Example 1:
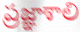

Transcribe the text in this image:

ప్రజ్ఞాశాలి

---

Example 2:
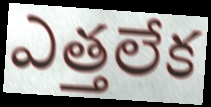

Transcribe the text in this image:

ఎత్తలేక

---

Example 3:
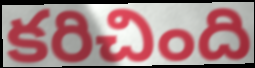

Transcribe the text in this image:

కరిచింది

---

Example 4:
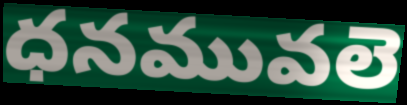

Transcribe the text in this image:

ధనమువలె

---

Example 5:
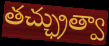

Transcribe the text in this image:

తచ్ఛ్రుత్వా